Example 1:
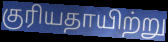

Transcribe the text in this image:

குரியதாயிற்று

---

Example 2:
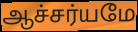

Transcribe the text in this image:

ஆச்சர்யமே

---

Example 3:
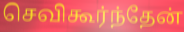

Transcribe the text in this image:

செவிகூர்ந்தேன்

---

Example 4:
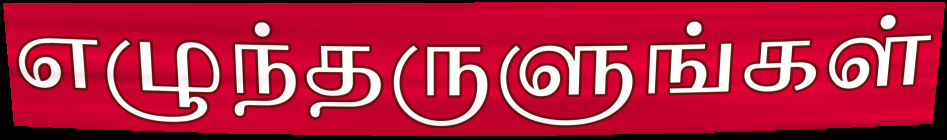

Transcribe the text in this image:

எழுந்தருளுங்கள்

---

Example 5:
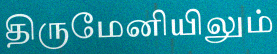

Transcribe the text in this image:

திருமேனியிலும்